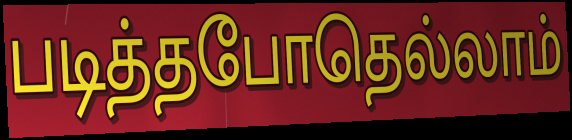
படித்தபோதெல்லாம்